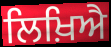
ਲਿਖ਼ਿਐ